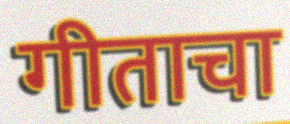
गीताचा